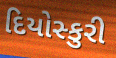
દિયોસ્કુરી